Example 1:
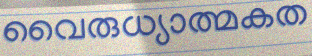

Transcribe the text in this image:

വൈരുധ്യാത്മകത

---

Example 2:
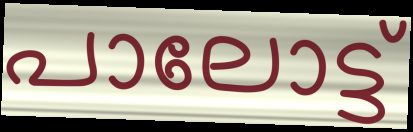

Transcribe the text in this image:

പാലോട്ട്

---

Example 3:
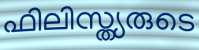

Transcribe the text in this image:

ഫിലിസ്ത്യരുടെ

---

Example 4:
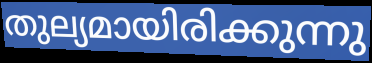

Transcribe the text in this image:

തുല്യമായിരിക്കുന്നു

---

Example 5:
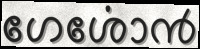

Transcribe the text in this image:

ഗേൎശോൻ